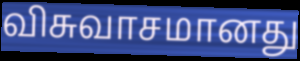
விசுவாசமானது